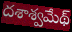
దశాశ్వమేథ్